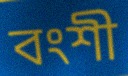
বংশী